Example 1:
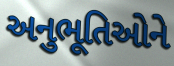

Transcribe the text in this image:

અનુભૂતિઓને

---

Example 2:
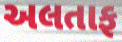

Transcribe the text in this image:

અલતાફ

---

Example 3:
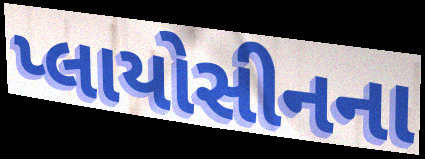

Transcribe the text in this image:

પ્લાયોસીનના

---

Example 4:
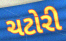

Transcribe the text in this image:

ચટોરી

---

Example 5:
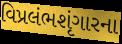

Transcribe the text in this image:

વિપ્રલંભશૃંગારના